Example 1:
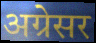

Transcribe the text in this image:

अग्रेसर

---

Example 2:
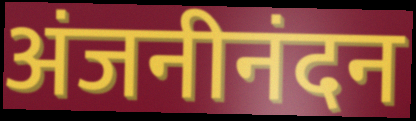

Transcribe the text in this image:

अंजनीनंदन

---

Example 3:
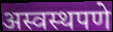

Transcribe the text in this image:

अस्वस्थपणे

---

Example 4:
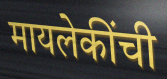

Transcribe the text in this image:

मायलेकींची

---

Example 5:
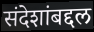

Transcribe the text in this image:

संदेशांबद्दल